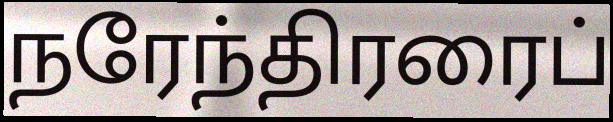
நரேந்திரரைப்